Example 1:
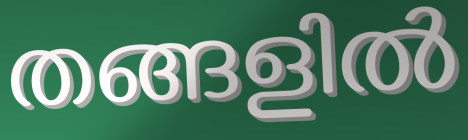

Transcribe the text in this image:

തങ്ങളിൽ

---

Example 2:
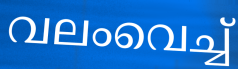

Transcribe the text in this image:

വലംവെച്ച്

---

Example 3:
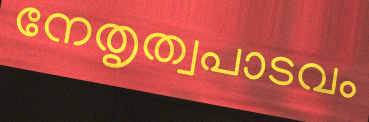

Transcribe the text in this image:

നേതൃത്വപാടവം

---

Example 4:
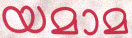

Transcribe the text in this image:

യമാമ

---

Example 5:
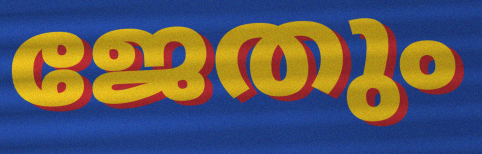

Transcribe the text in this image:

ജേതും